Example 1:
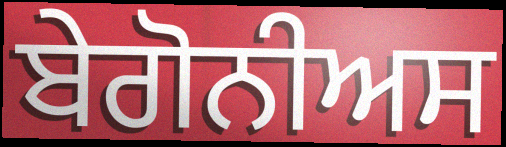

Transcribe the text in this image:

ਬੇਗੋਨੀਅਸ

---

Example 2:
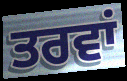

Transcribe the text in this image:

ਤਰਵਾਂ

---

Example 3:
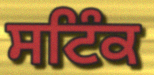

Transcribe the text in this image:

ਸਟਿੰਕ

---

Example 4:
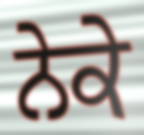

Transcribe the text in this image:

ਨੇਕੇ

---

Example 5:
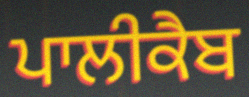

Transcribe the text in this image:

ਪਾਲੀਕੈਬ